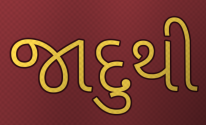
જાદુથી